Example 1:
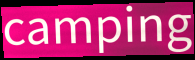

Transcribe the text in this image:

camping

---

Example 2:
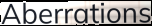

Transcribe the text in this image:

Aberrations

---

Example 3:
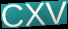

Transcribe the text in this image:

CXV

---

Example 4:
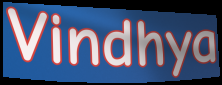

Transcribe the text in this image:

Vindhya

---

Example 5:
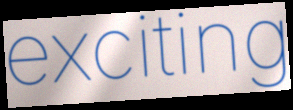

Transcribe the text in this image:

exciting